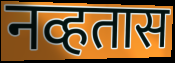
नव्हतास